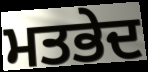
ਮਤਭੇਦ